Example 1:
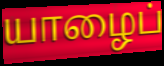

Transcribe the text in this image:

யாழைப்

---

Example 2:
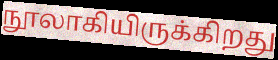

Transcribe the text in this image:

நூலாகியிருக்கிறது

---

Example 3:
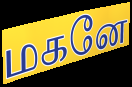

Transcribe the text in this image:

மகனே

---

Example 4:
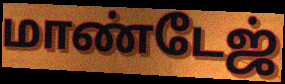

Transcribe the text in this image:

மாண்டேஜ்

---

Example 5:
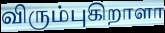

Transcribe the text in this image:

விரும்புகிறாளா